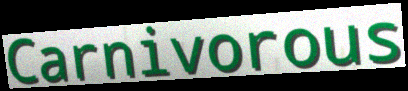
Carnivorous